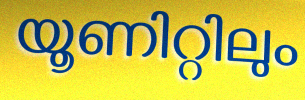
യൂണിറ്റിലും